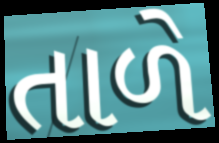
તાળે